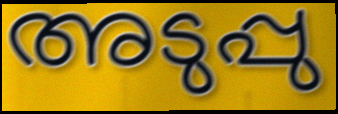
അടുപ്പു